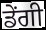
ਡੇਂਗੀ